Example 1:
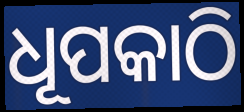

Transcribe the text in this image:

ଧୂପକାଠି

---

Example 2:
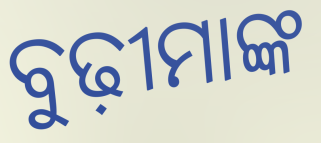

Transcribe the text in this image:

ବୁଢ଼ୀମାଙ୍କ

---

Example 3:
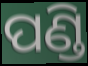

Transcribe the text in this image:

ପଣ୍ଡି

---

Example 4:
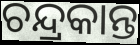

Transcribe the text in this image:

ଚନ୍ଦ୍ରକାନ୍ତ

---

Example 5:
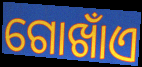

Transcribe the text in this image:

ଗୋଖାଁଏ